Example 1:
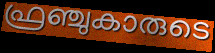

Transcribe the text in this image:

ഫ്രഞ്ചുകാരുടെ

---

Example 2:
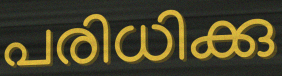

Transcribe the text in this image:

പരിധിക്കു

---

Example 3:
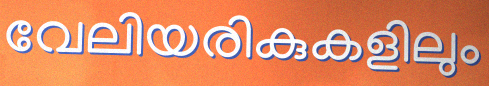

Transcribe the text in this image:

വേലിയരികുകളിലും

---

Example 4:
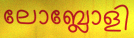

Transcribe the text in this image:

ലോബ്ലോളി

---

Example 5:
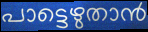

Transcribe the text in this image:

പാട്ടെഴുതാൻ